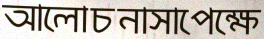
আলোচনাসাপেক্ষে